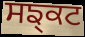
ਸਙ੍ਕਟ